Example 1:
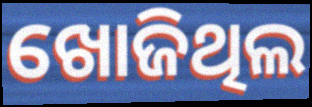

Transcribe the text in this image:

ଖୋଜିଥିଲ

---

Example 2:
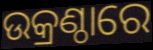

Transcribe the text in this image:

ଉକ୍ରଣ୍ଠାରେ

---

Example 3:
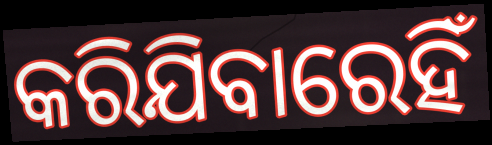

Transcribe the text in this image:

କରିଯିବାରେହିଁ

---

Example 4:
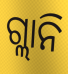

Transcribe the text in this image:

ଗ୍ଲାନି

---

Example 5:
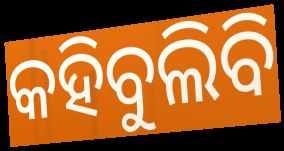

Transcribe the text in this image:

କହିବୁଲିବି